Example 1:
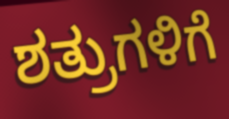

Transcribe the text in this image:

ಶತ್ರುಗಳಿಗೆ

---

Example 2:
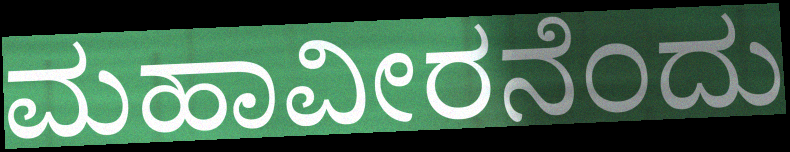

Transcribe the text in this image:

ಮಹಾವೀರನೆಂದು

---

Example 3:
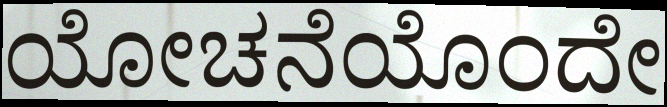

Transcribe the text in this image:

ಯೋಚನೆಯೊಂದೇ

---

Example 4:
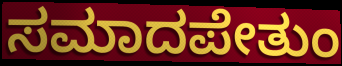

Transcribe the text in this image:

ಸಮಾದಪೇತುಂ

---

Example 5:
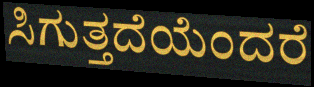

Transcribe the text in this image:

ಸಿಗುತ್ತದೆಯೆಂದರೆ